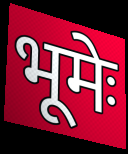
भूमेः